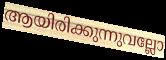
ആയിരിക്കുന്നുവല്ലോ